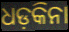
ଧଡ଼କିନା